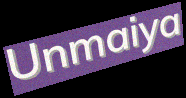
Unmaiya